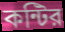
কন্টির